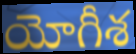
యోగీశ